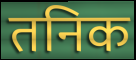
तनिक